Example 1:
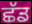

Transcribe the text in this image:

ਛੱਡ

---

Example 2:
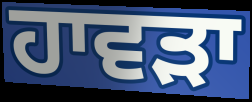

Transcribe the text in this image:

ਹਾਵਡ਼ਾ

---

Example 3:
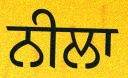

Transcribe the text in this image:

ਨੀਲਾ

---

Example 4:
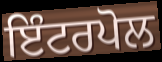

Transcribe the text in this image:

ਇੰਟਰਪੋਲ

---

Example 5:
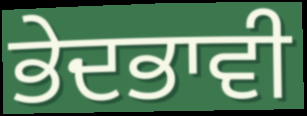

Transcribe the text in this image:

ਭੇਦਭਾਵੀ